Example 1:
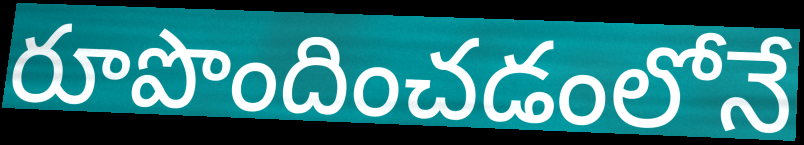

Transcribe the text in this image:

రూపొందించడంలోనే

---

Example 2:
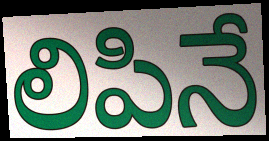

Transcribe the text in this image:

లిపినే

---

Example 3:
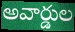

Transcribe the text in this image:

అవార్డుల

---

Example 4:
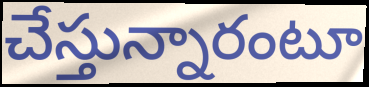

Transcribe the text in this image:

చేస్తున్నారంటూ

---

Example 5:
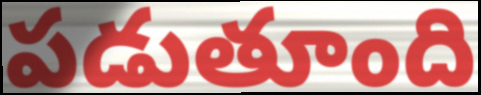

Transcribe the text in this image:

పడుతూంది